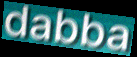
dabba